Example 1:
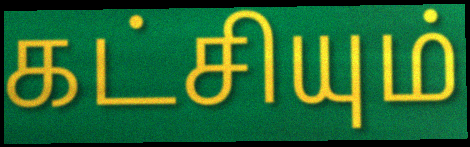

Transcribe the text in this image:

கட்சியும்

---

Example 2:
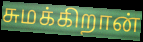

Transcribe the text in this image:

சுமக்கிறான்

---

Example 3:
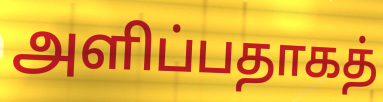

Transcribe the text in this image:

அளிப்பதாகத்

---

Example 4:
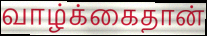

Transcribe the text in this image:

வாழ்க்கைதான்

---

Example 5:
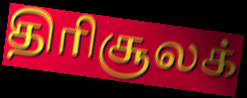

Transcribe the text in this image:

திரிசூலக்